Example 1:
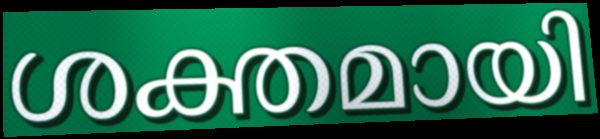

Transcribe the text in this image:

ശക്തമായി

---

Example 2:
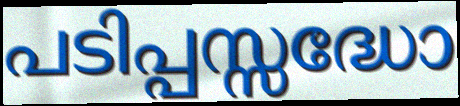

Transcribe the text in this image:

പടിപ്പസ്സദ്ധോ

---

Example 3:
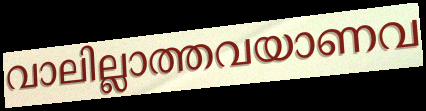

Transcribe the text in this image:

വാലില്ലാത്തവയാണവ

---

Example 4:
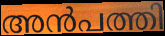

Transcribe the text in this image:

അൻപത്തി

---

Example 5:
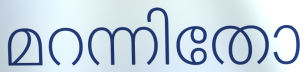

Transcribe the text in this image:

മറന്നിതോ